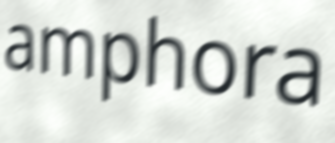
amphora